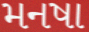
મનષા